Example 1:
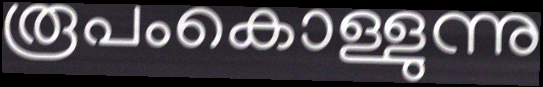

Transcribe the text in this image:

രൂപംകൊള്ളുന്നു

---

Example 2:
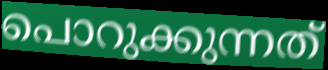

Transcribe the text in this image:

പൊറുക്കുന്നത്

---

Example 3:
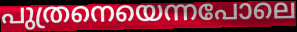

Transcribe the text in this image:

പുത്രനെയെന്നപോലെ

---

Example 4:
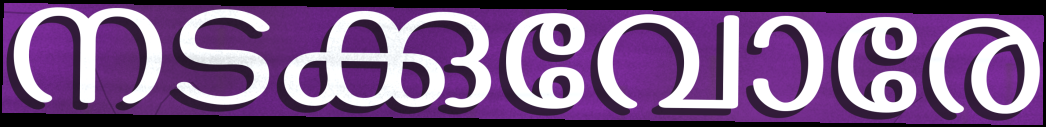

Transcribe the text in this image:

നടക്കുവോരേ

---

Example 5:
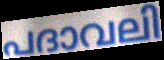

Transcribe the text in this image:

പദാവലി